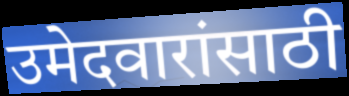
उमेदवारांसाठी